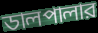
ডালপালার